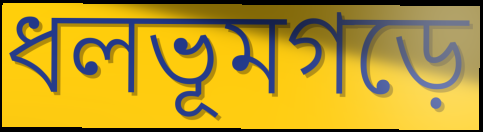
ধলভূমগড়ে